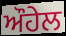
ਔਹੇਲ